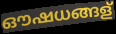
ഔഷധങ്ങള്